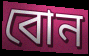
বোন